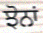
ਝੋਨਾਂ